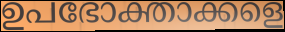
ഉപഭോക്താക്കളെ